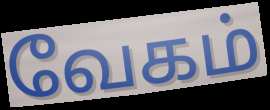
வேகம்